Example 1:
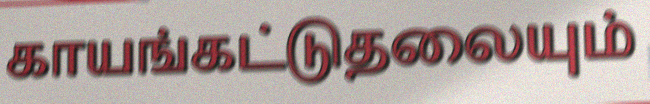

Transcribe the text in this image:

காயங்கட்டுதலையும்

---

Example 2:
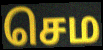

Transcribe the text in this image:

செம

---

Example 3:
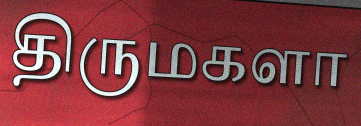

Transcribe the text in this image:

திருமகளா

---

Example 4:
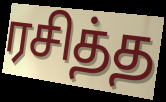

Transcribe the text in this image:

ரசித்த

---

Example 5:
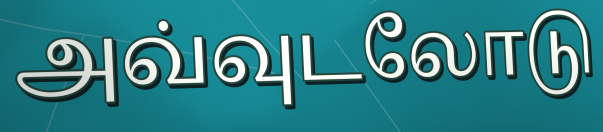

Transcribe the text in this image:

அவ்வுடலோடு